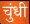
चुंधी